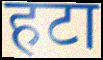
हटा